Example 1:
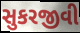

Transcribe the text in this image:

સુકરજીવી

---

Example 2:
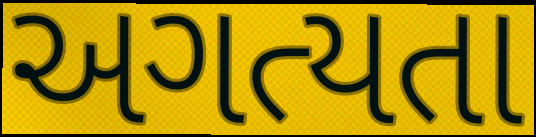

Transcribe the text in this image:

અગત્યતા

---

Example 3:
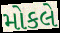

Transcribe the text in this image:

મોકલે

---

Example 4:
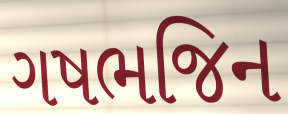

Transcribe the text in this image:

ગષભજિન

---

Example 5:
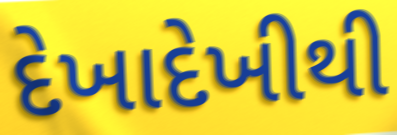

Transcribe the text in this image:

દેખાદેખીથી